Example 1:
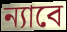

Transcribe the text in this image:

ন্যাবে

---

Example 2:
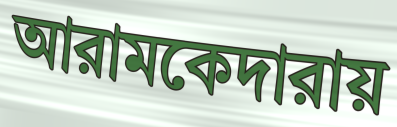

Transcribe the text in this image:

আরামকেদারায়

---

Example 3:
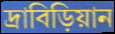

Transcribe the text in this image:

দ্রাবিড়িয়ান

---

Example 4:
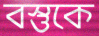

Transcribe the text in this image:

বস্তুকে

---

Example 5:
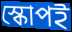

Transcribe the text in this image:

স্কোপই